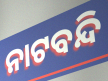
ନାଟବନ୍ଦି